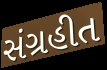
સંગ્રહીત